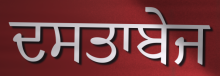
ਦਸਤਾਬੇਜ